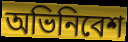
অভিনিবেশ